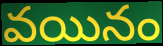
వయినం